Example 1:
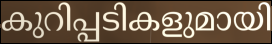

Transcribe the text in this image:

കുറിപ്പടികളുമായി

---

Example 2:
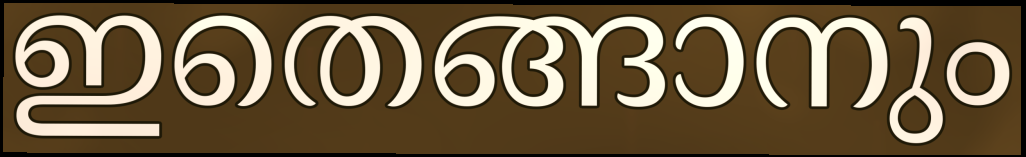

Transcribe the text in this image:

ഇതെങ്ങാനും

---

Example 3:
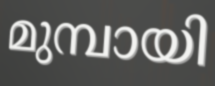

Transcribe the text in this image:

മുമ്പായി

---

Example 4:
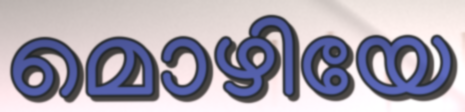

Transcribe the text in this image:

മൊഴിയേ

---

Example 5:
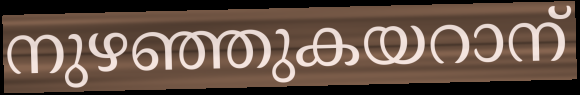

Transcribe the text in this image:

നുഴഞ്ഞുകയറാന്